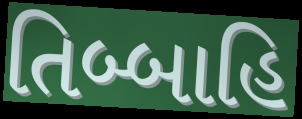
તિબ્બાહિ